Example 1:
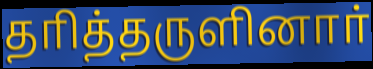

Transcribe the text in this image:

தரித்தருளினார்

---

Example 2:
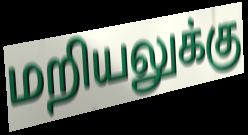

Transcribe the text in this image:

மறியலுக்கு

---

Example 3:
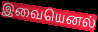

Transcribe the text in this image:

இவையெனல்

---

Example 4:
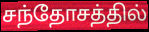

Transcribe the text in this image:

சந்தோசத்தில்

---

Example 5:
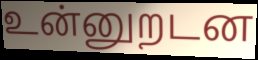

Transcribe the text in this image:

உன்னுறடன